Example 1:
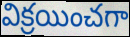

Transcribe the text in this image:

విక్రయించగా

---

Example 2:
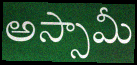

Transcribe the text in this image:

అస్సామీ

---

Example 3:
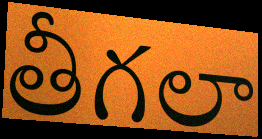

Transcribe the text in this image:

తీగలా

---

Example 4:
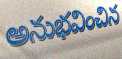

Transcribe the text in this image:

అనుభవించిన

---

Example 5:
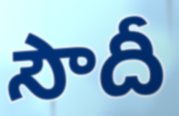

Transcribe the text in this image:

సౌదీ